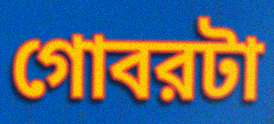
গোবরটা